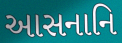
આસનાનિ